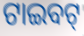
ଟାଇବଟ୍